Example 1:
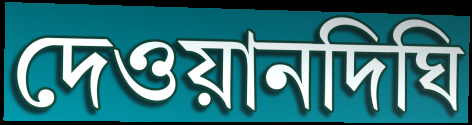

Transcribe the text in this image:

দেওয়ানদিঘি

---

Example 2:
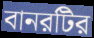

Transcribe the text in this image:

বানরটির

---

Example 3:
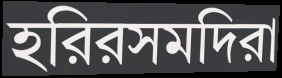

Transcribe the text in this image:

হরিরসমদিরা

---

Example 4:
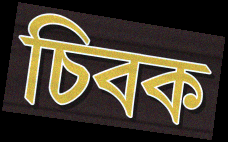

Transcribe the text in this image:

চিবক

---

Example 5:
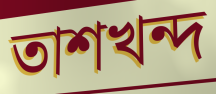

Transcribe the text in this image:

তাশখন্দ